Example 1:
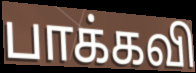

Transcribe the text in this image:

பாக்கவி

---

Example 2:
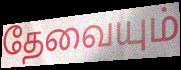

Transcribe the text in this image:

தேவையும்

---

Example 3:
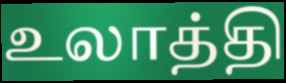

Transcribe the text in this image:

உலாத்தி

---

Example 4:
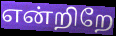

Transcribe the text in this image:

என்றிறே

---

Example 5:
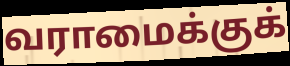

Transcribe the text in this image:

வராமைக்குக்